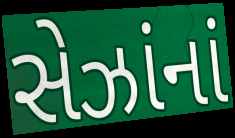
સેઝાંનાં